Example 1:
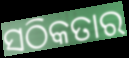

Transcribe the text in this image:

ସଠିକତାର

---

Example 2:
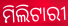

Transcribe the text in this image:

ମିଲିଟାରୀ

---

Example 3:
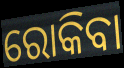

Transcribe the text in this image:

ରୋକିବା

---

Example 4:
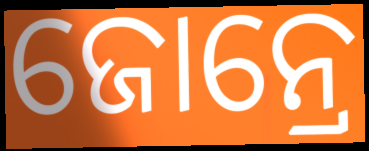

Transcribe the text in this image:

ଜୋନ୍ରେ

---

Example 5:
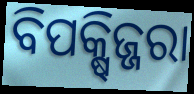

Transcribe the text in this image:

ବିପକ୍ଷ୍ଜ୍ଜିରା